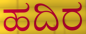
ಹದಿರ